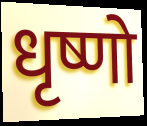
धृष्णो